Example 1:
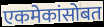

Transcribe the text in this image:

एकमेकांसोबत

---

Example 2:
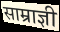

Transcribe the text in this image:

साम्राज्ञी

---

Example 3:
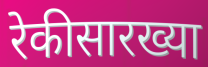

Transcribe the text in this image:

रेकीसारख्या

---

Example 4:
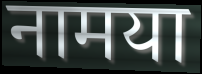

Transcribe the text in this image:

नामया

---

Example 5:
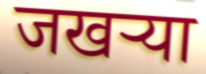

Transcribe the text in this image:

जखऱ्या